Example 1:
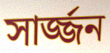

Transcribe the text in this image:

সার্জ্জন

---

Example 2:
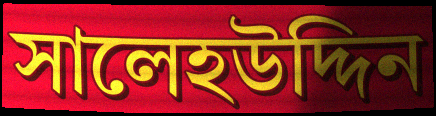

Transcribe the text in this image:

সালেহউদ্দিন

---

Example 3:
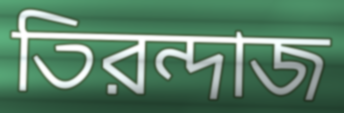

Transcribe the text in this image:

তিরন্দাজ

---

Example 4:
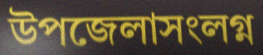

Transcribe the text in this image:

উপজেলাসংলগ্ন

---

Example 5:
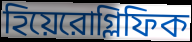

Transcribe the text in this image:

হিয়েরোগ্লিফিক